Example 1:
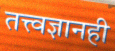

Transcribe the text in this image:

तत्त्वज्ञानही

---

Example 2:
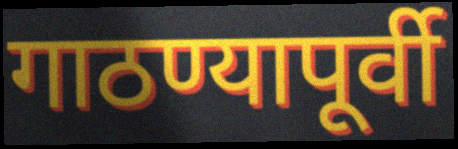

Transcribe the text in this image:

गाठण्यापूर्वी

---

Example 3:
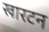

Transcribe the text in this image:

खारटन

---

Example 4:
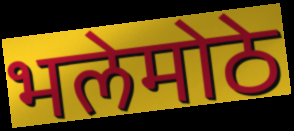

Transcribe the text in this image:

भलेमोठे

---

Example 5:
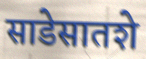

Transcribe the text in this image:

साडेसातशे